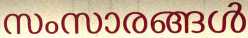
സംസാരങ്ങൾ